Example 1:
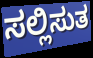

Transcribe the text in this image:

ಸಲ್ಲಿಸುತ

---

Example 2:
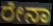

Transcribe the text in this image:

ರೇನಾ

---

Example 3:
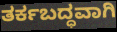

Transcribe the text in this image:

ತರ್ಕಬದ್ಧವಾಗಿ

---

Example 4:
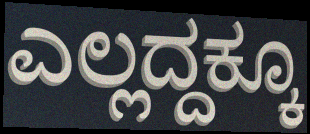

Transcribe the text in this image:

ಎಲ್ಲದ್ದಕ್ಕೂ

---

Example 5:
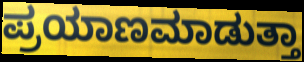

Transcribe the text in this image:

ಪ್ರಯಾಣಮಾಡುತ್ತಾ